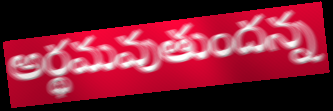
అర్థమవుతుందన్న